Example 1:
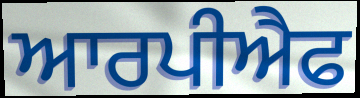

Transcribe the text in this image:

ਆਰਪੀਐਫ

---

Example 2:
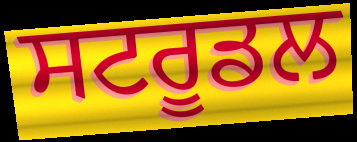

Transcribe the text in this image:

ਸਟਰੂਡਲ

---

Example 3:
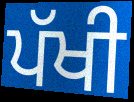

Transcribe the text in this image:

ਪੱਖੀ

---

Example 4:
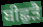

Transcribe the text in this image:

ਬੀਛੁੜੈ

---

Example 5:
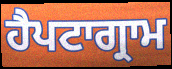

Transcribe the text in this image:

ਹੈਪਟਾਗ੍ਰਾਮ